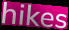
hikes